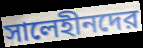
সালেহীনদের